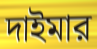
দাইমার